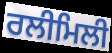
ਰਲੀਮਿਲੀ